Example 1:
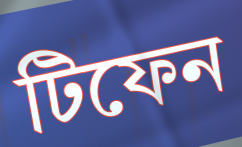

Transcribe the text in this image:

টিফেন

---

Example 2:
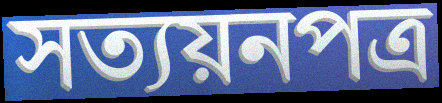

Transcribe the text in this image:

সত্যয়নপত্র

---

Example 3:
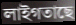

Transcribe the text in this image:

লাইগতাছে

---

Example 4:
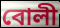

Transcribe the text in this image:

বোলী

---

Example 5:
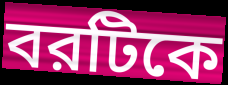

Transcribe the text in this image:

বরটিকে